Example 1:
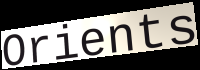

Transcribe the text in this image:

Orients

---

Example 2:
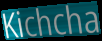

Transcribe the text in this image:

Kichcha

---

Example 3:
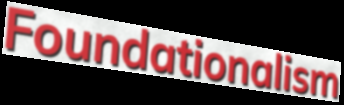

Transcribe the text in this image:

Foundationalism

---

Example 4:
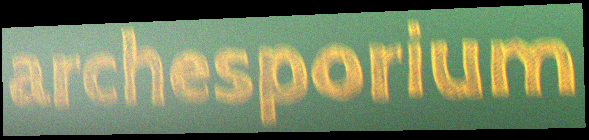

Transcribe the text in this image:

archesporium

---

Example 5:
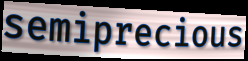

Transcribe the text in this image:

semiprecious